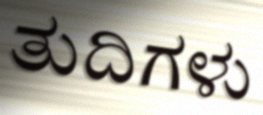
ತುದಿಗಳು